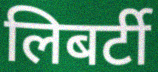
लिबर्टी